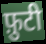
फ़ुटी